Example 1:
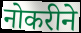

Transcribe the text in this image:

नोकरीने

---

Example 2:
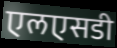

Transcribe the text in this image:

एलएसडी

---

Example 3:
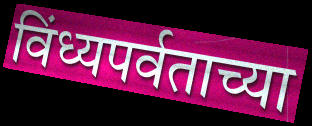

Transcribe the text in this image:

विंध्यपर्वताच्या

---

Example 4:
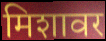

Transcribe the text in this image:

मिशावर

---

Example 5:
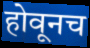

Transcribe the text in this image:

होवूनच